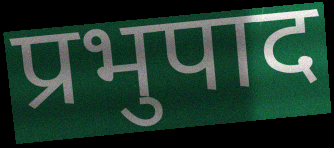
प्रभुपाद